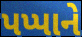
પપ્પાને